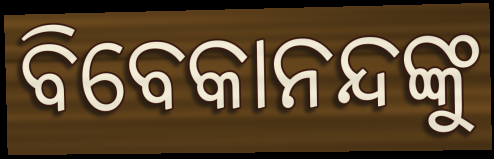
ବିବେକାନନ୍ଦଙ୍କୁ